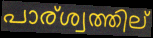
പാര്ശ്വത്തില്